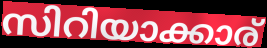
സിറിയാക്കാര്